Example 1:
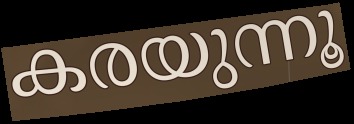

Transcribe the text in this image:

കരയുന്നൂ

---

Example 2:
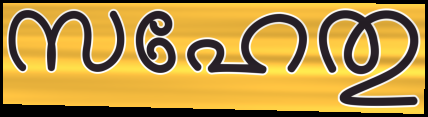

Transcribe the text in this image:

സഹേതു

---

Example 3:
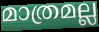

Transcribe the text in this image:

മാത്രമല്ല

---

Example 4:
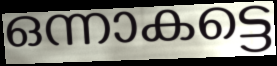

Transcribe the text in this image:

ഒന്നാകട്ടെ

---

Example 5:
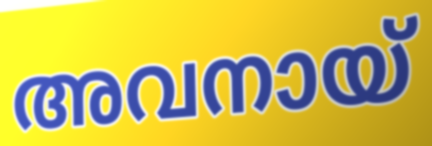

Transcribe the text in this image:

അവനായ്